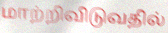
மாற்றிவிடுவதில்